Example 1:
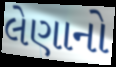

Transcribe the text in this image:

લેણાનો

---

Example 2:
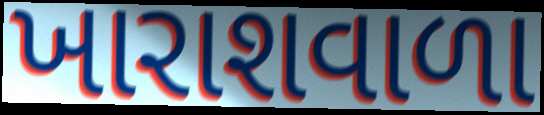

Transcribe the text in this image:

ખારાશવાળા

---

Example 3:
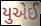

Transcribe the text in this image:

યુએઈ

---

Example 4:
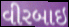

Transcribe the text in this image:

વીરબાઇ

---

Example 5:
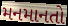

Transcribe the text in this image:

મનમાનતો